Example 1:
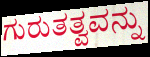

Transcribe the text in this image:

ಗುರುತತ್ವವನ್ನು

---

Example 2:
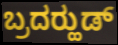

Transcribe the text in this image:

ಬ್ರದರ್‍ಹುಡ್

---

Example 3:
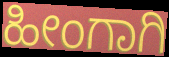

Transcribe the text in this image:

ಹೀಂಗಾಗಿ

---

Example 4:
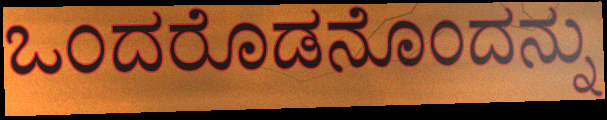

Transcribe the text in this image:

ಒಂದರೊಡನೊಂದನ್ನು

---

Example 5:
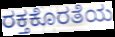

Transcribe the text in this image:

ರಕ್ತಕೊರತೆಯ